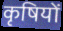
कृषियों